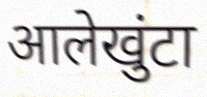
आलेखुंटा